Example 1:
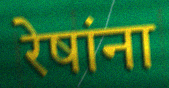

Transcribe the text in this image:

रेषांना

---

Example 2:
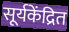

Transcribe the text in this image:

सूर्यकेंद्रित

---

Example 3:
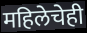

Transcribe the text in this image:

महिलेचेही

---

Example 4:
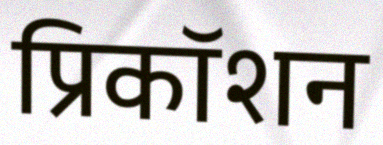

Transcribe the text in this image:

प्रिकॉशन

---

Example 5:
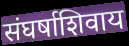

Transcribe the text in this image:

संघर्षाशिवाय